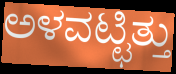
ಅಳವಟ್ಟಿತ್ತು